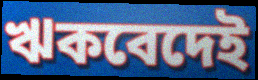
ঋকবেদেই